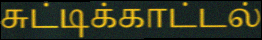
சுட்டிக்காட்டல்